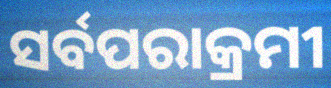
ସର୍ବପରାକ୍ରମୀ